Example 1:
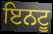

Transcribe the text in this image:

ਇਨਟੂ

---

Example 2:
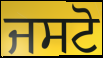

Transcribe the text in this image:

ਜਸਟੋ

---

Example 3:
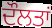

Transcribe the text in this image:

ਦੌਲਤਾਂ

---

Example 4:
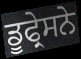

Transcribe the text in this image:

ਡੂਫ੍ਰੇਸਨੇ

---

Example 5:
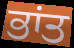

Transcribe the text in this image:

ਭਾਂਤ